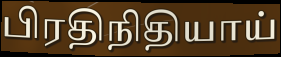
பிரதிநிதியாய்